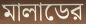
মালাডের